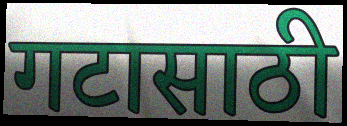
गटासाठी